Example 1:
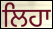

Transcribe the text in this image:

ਲਿਹਾ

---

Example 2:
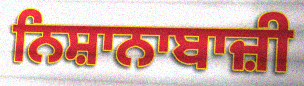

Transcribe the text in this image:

ਨਿਸ਼ਾਨਾਬਾਜ਼ੀ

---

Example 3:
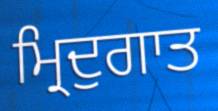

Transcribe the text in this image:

ਮ੍ਰਿਦੁਗਾਤ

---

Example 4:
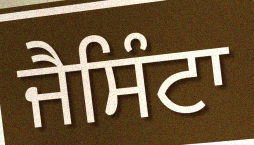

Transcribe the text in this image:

ਜੈਸਿੰਟਾ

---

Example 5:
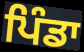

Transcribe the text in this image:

ਪਿੰਡਾ